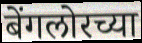
बेंगलोरच्या